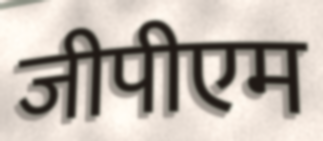
जीपीएम